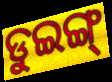
ଡୁଇଙ୍ଗ୍